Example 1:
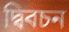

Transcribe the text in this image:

দ্বিবচন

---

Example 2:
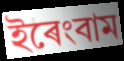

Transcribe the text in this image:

ইৰেংবাম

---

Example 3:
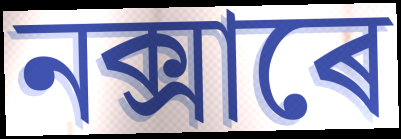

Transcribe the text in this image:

নক্সাৰে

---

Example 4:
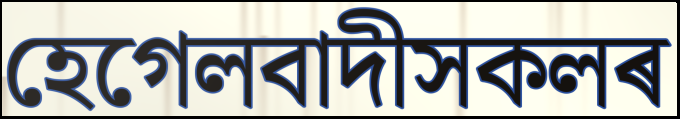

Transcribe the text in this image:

হেগেলবাদীসকলৰ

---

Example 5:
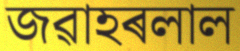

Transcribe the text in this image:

জৱাহৰলাল